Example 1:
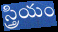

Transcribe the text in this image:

స్త్రియం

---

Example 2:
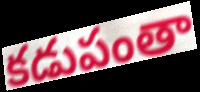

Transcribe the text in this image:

కడుపంతా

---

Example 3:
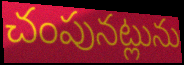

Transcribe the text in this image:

చంపునట్లును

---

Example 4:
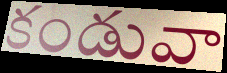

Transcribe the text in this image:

కండువా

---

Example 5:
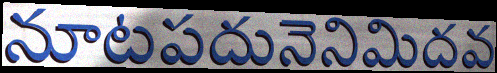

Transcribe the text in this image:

నూటపదునెనిమిదవ